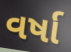
વર્ષા